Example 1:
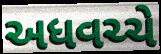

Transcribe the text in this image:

અધવચ્ચે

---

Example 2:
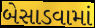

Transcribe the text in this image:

બેસાડવામાં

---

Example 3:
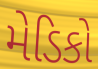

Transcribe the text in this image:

મેડિકો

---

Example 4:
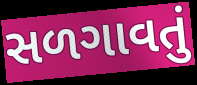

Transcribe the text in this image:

સળગાવતું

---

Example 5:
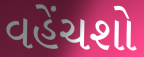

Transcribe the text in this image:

વહેંચશો